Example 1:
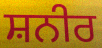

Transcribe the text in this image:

ਸ਼ਨੀਰ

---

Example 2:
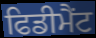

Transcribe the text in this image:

ਫਿਡੀਮੈਂਟ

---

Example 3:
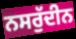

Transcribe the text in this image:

ਨਸਰੁੱਦੀਨ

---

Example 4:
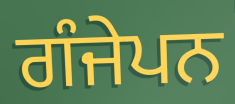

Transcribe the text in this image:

ਗੰਜੇਪਨ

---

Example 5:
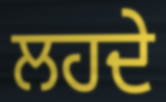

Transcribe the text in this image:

ਲਹਦੇ